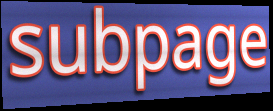
subpage